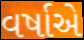
વર્ષાએ